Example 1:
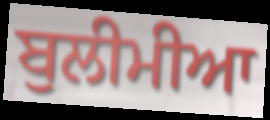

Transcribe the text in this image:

ਬੁਲੀਮੀਆ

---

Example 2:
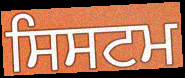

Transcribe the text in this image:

ਸਿਸਟਮ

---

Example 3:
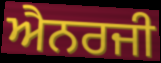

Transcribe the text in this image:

ਐਨਰਜੀ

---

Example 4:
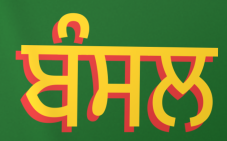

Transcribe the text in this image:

ਬੰਸਲ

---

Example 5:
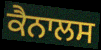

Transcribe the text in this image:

ਕੈਨਾਲਸ